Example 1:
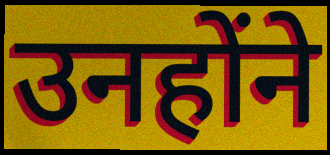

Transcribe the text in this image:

उनहोंने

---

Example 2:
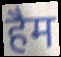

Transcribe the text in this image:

हैम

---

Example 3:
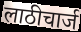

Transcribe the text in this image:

लाठीचार्ज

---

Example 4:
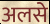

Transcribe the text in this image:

अलसे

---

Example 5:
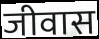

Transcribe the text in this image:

जीवास